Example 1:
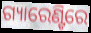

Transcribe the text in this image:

ଗ୍ୟାରେଣ୍ଟିରେ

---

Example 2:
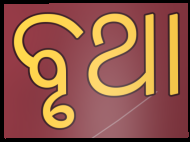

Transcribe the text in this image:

ବୃଥା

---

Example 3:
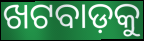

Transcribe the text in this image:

ଖଟବାଡ଼କୁ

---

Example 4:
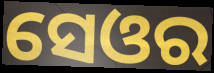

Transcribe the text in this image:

ସେଓର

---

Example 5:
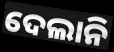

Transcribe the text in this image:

ଦେଲାନି